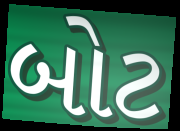
બોટ